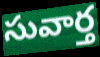
సువార్త